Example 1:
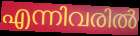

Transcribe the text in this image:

എന്നിവരിൽ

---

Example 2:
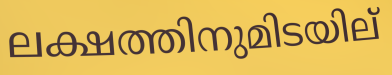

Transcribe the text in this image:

ലക്ഷത്തിനുമിടയില്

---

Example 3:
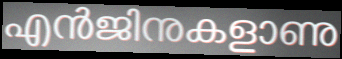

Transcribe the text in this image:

എൻജിനുകളാണു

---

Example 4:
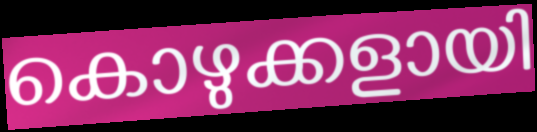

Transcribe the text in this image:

കൊഴുക്കളായി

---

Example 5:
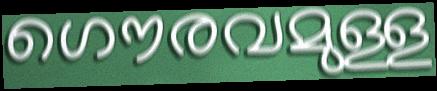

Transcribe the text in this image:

ഗൌരവമുള്ള